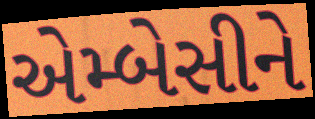
એમ્બેસીને